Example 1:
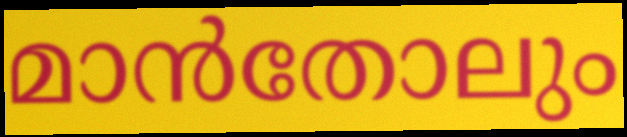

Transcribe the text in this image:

മാൻതോലും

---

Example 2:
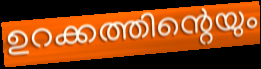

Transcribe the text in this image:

ഉറക്കത്തിന്റെയും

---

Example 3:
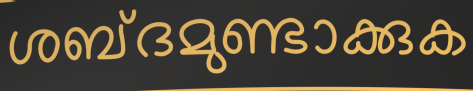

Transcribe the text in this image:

ശബ്ദമുണ്ടാക്കുക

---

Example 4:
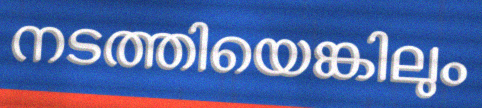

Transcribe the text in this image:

നടത്തിയെങ്കിലും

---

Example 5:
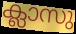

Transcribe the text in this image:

ക്ലാസു